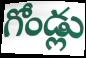
గోండ్లు